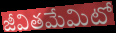
జీవితమేమిటో